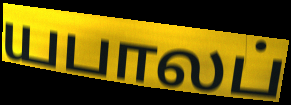
யபாலப்